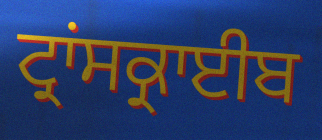
ਟ੍ਰਾਂਸਕ੍ਰਾਈਬ